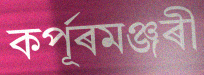
কৰ্পূৰমঞ্জৰী